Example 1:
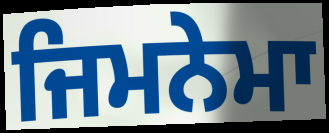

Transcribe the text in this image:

ਜਿਮਨੇਮਾ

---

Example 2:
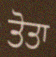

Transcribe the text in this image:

ਤੋਤਾ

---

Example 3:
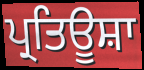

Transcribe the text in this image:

ਪ੍ਰਤਿਊਸ਼ਾ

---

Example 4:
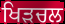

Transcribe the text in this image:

ਖਿੜਚਲ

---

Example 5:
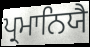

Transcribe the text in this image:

ਪ੍ਰਮਾਨਿਯੈ